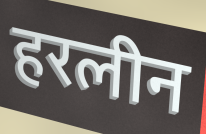
हरलीन